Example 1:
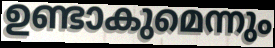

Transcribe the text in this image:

ഉണ്ടാകുമെന്നും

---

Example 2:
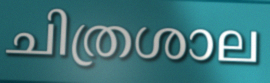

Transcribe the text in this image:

ചിത്രശാല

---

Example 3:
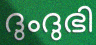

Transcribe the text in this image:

ദുംദുഭി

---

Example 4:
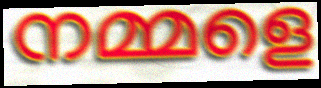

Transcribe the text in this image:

നമ്മളെ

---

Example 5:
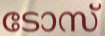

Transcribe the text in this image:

ടോസ്